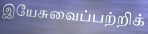
இயேசுவைப்பற்றிக்